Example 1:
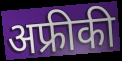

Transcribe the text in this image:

अफ्रीकी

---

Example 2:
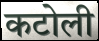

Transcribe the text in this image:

कटोली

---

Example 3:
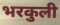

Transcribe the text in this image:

भरकुली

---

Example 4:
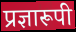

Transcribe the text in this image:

प्रज्ञारूपी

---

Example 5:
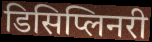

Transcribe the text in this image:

डिसिप्लिनरी